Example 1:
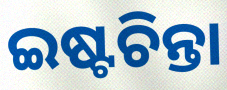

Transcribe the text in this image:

ଇଷ୍ଟଚିନ୍ତା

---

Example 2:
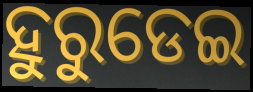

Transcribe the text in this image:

ହୁରୁଡେଇ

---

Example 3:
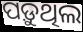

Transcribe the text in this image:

ପଡ଼ୁଥିଲ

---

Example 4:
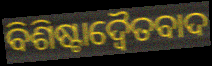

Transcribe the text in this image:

ବିଶିଷ୍ଟାଦ୍ଵୈତବାଦ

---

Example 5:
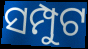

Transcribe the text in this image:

ସମ୍ପୁଟ